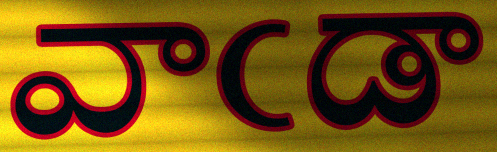
వాఁడా